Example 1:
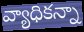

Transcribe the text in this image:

వ్యాధికన్నా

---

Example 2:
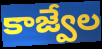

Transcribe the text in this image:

కాజ్వేల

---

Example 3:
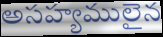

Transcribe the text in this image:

అసహ్యములైన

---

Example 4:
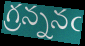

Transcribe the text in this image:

గ్రన్ననఁ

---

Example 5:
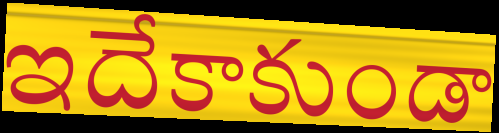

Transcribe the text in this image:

ఇదేకాకుండా